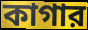
কাগার